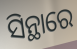
ସିନ୍ଥାରେ